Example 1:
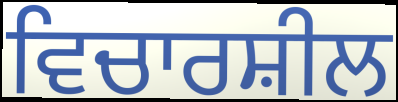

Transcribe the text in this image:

ਵਿਚਾਰਸ਼ੀਲ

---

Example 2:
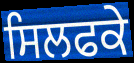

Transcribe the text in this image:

ਸਿਲਫਕੇ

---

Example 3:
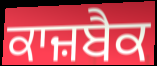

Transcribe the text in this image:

ਕਾਜ਼ਬੈਕ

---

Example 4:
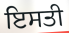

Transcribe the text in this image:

ਇਸਤੀ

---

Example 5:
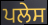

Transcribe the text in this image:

ਪਲੇਸ